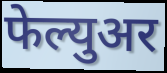
फेल्युअर